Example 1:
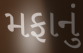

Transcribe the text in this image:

મફાનું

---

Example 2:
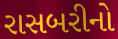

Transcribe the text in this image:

રાસબરીનો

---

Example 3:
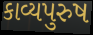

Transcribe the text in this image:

કાવ્યપુરુષ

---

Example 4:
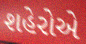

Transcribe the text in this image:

શહેરોએ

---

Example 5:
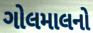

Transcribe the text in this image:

ગોલમાલનો